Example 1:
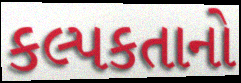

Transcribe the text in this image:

કલ્પકતાનો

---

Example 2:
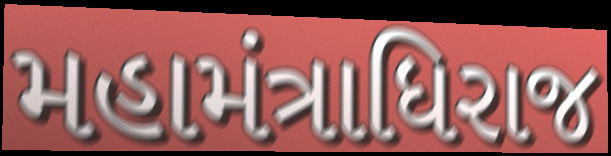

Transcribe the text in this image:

મહામંત્રાધિરાજ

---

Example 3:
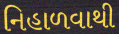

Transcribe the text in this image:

નિહાળવાથી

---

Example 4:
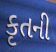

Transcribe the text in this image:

કૃતની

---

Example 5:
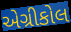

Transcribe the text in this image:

એગ્રીકોલ